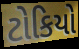
ટોકિયો